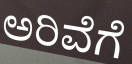
ಅರಿವೆಗೆ